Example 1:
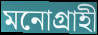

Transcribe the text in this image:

মনোগ্রাহী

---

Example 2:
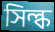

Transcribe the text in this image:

সিল্ক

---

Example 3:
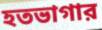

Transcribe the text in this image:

হতভাগার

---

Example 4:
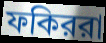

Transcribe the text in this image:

ফকিররা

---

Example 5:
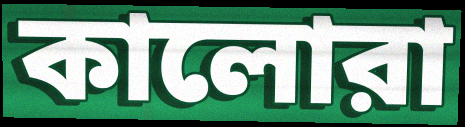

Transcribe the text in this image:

কালোরা